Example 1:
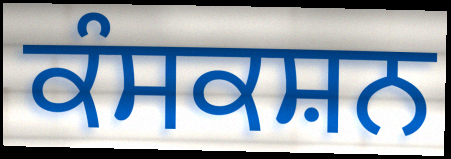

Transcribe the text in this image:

ਕੰਸਕਸ਼ਨ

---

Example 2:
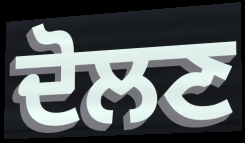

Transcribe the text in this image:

ਦੋਲਣ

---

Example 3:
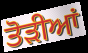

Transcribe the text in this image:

ਤੋਡ਼ੀਆਂ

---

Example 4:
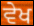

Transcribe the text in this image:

ਵੇਖ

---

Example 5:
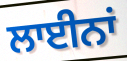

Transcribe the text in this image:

ਲਾਈਨਾਂ